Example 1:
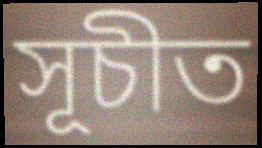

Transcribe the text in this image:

সূচীত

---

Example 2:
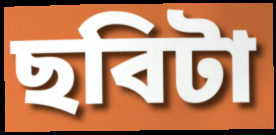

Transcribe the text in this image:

ছবিটা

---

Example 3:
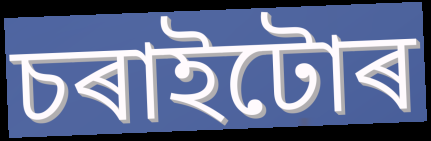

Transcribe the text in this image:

চৰাইটোৰ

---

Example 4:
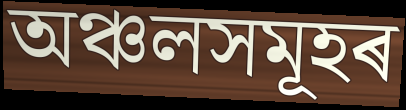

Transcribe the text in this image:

অঞ্চলসমূহৰ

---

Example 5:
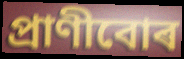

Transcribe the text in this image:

প্ৰাণীবোৰ